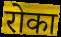
रोका